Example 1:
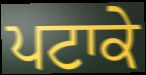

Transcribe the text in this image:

ਪਟਾਕੇ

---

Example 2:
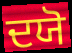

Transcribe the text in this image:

ਦਯੋ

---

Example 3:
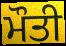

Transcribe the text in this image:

ਮੌਤੀ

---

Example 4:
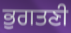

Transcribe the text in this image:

ਭੁਗਤਣੀ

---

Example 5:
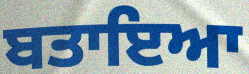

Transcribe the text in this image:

ਬਤਾਇਆ